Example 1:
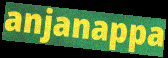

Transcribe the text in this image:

anjanappa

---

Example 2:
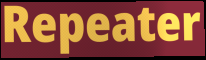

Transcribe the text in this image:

Repeater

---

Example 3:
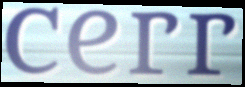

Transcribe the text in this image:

cerr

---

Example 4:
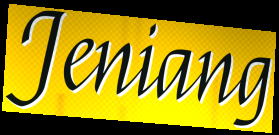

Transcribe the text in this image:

Jeniang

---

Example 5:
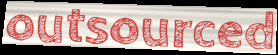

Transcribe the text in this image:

outsourced